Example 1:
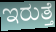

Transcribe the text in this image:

ಇರುತ್ತೆ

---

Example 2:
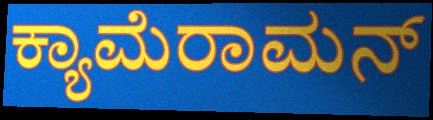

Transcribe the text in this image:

ಕ್ಯಾಮೆರಾಮನ್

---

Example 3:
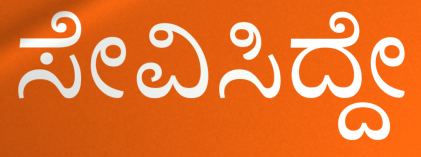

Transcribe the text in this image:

ಸೇವಿಸಿದ್ದೇ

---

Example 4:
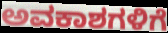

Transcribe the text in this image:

ಅವಕಾಶಗಳಿಗೆ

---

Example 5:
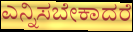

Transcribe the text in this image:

ಎನ್ನಿಸಬೇಕಾದರೆ